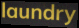
laundry